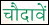
चौदावें